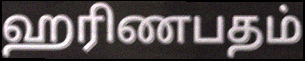
ஹரிணபதம்